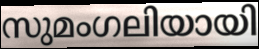
സുമംഗലിയായി